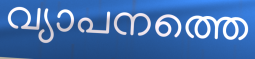
വ്യാപനത്തെ